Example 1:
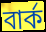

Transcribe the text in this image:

বার্ক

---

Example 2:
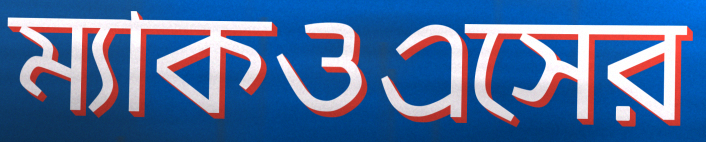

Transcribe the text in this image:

ম্যাকওএসের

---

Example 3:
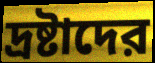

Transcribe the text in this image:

দ্রষ্টাদের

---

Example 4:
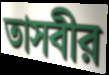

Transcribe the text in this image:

তাসবীর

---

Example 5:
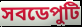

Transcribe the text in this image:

সবডেপুটি